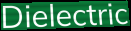
Dielectric